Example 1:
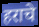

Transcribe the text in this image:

हराचे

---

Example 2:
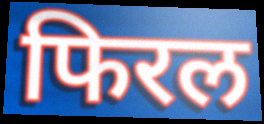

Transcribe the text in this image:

फिरल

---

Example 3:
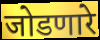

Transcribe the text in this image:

जोडणारे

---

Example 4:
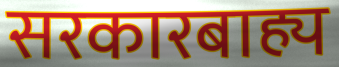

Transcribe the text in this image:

सरकारबाह्य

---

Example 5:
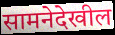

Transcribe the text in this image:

सामनेदेखील